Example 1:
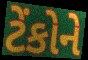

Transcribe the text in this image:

ટેંકોને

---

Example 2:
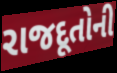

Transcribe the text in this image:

રાજદૂતોની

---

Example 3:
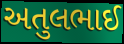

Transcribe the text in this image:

અતુલભાઈ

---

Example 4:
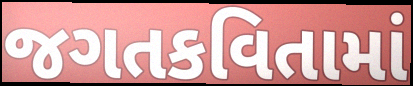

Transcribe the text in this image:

જગતકવિતામાં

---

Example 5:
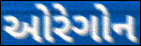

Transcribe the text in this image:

ઓરેગોન